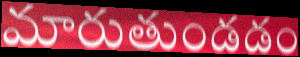
మారుతుండడం